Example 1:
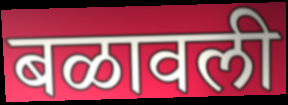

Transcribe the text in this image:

बळावली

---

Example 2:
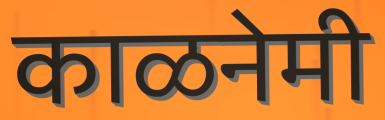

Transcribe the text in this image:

काळनेमी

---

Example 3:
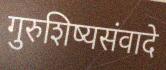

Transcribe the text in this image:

गुरुशिष्यसंवादे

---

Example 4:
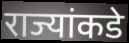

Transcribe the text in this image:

राज्यांकडे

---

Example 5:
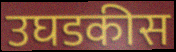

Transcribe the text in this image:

उघडकीस